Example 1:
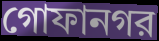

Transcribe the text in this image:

গোফানগর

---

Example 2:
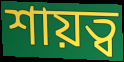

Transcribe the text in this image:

শায়ত্ব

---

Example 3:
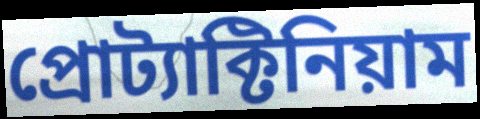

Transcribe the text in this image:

প্রোট্যাক্টিনিয়াম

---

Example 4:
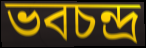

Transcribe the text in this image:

ভবচন্দ্র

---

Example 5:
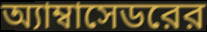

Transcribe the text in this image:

অ্যাম্বাসেডরের